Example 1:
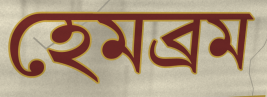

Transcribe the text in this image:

হেমব্রম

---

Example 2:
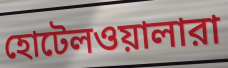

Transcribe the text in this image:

হোটেলওয়ালারা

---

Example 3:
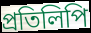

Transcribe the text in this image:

প্রতিলিপি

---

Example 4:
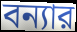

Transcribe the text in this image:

বন্যার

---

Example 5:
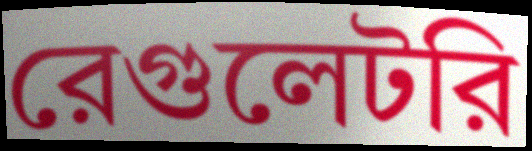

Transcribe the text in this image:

রেগুলেটরি